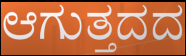
ಆಗುತ್ತದದ